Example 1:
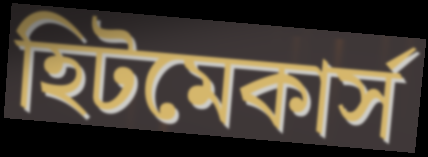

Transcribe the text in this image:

হিটমেকার্স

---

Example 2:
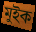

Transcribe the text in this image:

মুইক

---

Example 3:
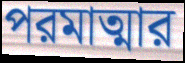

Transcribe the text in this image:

পরমাত্মার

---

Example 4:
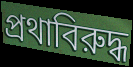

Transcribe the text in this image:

প্রথাবিরুদ্ধ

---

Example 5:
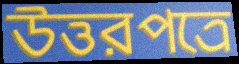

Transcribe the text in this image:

উত্তরপত্রে